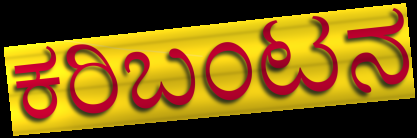
ಕರಿಬಂಟನ